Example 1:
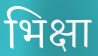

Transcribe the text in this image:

भिक्षा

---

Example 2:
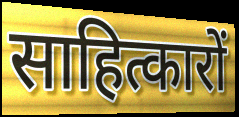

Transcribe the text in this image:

साहित्कारों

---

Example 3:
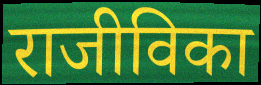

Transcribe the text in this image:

राजीविका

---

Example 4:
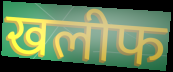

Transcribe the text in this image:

खलीफ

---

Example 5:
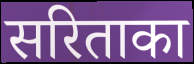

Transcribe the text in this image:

सरिताका